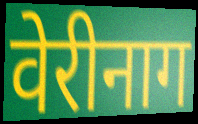
वेरीनाग